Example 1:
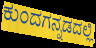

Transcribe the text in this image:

ಕುಂದಗನ್ನಡದಲ್ಲಿ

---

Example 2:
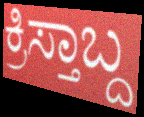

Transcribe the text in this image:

ಕ್ರಿಸ್ತಾಬ್ದ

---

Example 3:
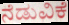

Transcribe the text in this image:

ನೆಡುವಿಕೆ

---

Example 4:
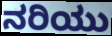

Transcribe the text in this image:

ನರಿಯು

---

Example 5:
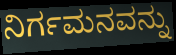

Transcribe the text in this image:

ನಿರ್ಗಮನವನ್ನು